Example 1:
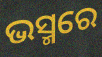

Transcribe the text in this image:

ଭସ୍ମରେ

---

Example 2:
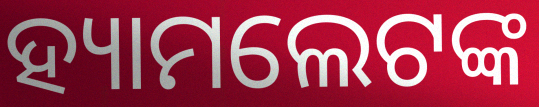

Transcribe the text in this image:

ହ୍ୟାମଲେଟଙ୍କ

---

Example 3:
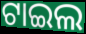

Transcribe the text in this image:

ଟାଇଲ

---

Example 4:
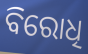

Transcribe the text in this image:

ବିରୋଧି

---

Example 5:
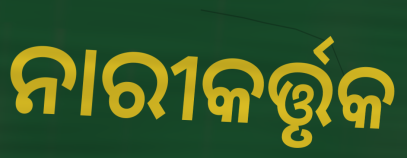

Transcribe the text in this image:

ନାରୀକର୍ତ୍ତୃକ